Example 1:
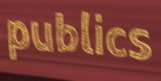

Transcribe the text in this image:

publics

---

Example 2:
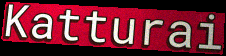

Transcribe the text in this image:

Katturai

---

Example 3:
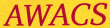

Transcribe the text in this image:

AWACS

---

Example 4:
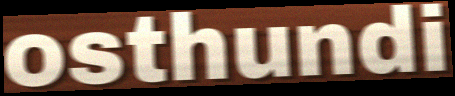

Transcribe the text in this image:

osthundi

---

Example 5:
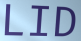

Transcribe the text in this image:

LID